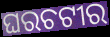
ଘରଚଟୀର